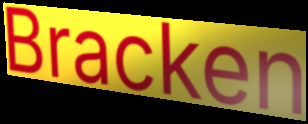
Bracken